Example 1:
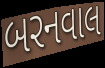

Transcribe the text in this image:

બરનવાલ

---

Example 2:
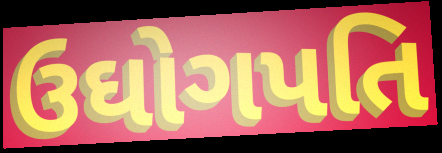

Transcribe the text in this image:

ઉઘોગપતિ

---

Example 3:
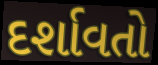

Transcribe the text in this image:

દર્શાવતો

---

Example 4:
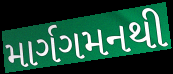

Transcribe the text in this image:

માર્ગગમનથી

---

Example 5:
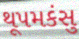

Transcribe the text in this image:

થૂપમકંસુ